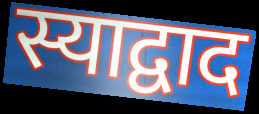
स्याद्वाद